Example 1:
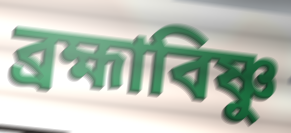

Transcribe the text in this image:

ব্রহ্মাবিষ্ণু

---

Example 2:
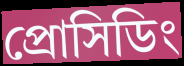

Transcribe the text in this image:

প্রোসিডিং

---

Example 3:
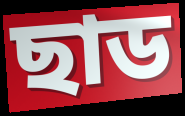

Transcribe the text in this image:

ছাড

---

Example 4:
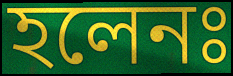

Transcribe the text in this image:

হলেনঃ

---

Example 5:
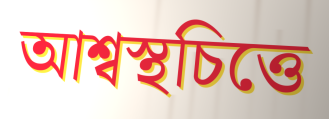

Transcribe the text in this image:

আশ্বস্থচিত্তে